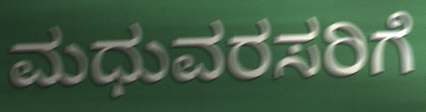
ಮಧುವರಸರಿಗೆ